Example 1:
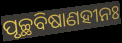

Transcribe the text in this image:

ପୃଚ୍ଛବିଷାଣହୀନଃ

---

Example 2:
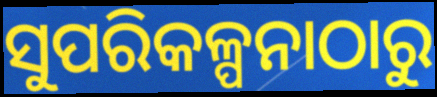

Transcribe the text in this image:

ସୁପରିକଳ୍ପନାଠାରୁ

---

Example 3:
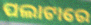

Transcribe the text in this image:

ପଲାଟାରେ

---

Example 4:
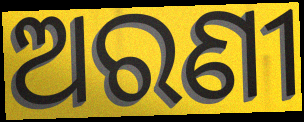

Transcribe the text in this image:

ଅରଣୀ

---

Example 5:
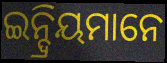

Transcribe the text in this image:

ଇନ୍ଦ୍ରିୟମାନେ